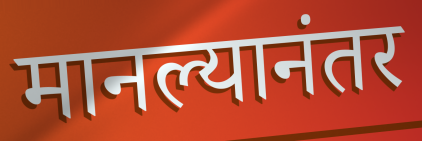
मानल्यानंतर